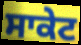
ਸਾਕੇਟ